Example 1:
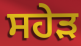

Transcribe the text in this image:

ਸਹੇੜ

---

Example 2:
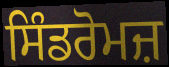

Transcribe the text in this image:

ਸਿੰਡਰੋਮਜ਼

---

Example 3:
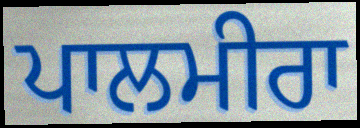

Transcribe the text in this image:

ਪਾਲਮੀਰਾ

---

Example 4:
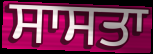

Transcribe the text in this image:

ਸਾਸਤਾ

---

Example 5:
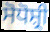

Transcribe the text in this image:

ਸੋਧੋਸ਼੍ਰੀ